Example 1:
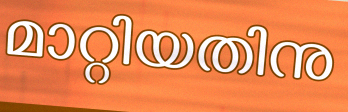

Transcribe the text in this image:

മാറ്റിയതിനു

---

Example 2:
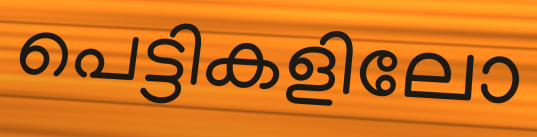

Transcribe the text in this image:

പെട്ടികളിലോ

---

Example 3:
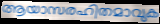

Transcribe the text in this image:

ആയാസരഹിതമാവുക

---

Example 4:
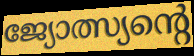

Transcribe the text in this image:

ജ്യോത്സ്യന്റെ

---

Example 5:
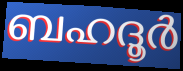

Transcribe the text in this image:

ബഹദൂർ